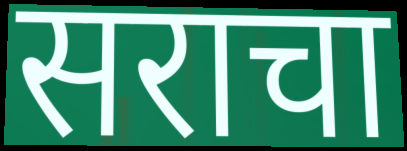
सराचा